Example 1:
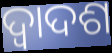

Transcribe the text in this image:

ଦ୍ୱାଦଶ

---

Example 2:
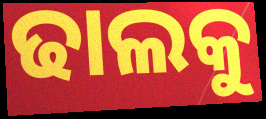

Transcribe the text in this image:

ଢାଲକୁ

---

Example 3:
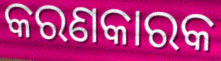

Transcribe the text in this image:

କରଣକାରକ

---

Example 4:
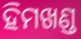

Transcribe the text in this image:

ହିମଖଣ୍ଡ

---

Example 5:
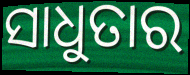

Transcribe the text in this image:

ସାଧୁତାର